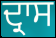
ਦ੍ਰਾਸ